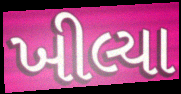
ખીલ્યા